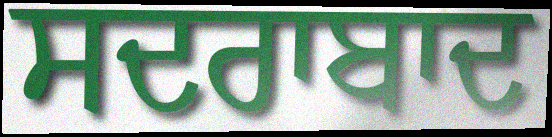
ਸਦਰਾਬਾਦ